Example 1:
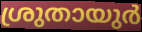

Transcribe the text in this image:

ശ്രുതായുർ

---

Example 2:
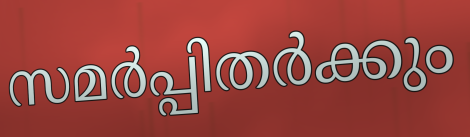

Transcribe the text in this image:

സമർപ്പിതർക്കും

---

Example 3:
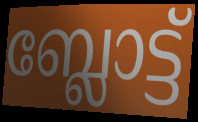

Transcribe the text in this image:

ബ്ലോട്ട്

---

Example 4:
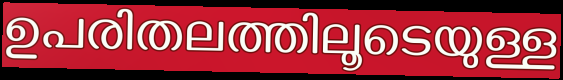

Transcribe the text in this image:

ഉപരിതലത്തിലൂടെയുള്ള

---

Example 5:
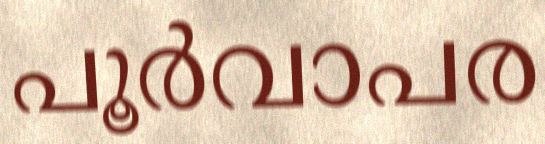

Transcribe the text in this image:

പൂർവാപര